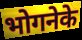
भोगनेके